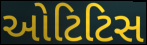
ઓટિટિસ